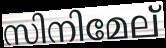
സിനിമേല്